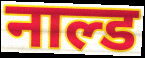
नाल्ड